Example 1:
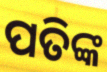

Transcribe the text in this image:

ପତିଙ୍କ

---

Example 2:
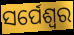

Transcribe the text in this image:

ସର୍ପେଶ୍ୱର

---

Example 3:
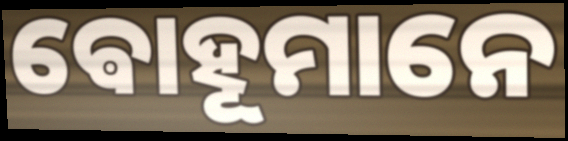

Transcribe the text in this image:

ଵୋହୂମାନେ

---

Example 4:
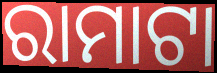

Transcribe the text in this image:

ରାମାଟା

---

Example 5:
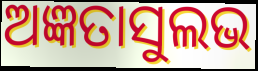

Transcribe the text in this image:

ଅଜ୍ଞତାସୁଲଭ